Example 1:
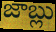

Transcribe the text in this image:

జాబ్లు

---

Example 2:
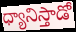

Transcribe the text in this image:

ధ్యానిస్తాడో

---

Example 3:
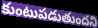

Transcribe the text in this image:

కుంటుపడుతుందని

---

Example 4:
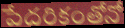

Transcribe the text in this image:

పేదరికంతోనో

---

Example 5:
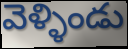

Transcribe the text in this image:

వెళ్ళిండు